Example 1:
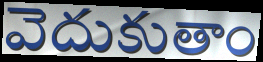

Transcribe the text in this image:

వెదుకుతాం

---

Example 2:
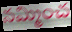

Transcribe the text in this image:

నమ్మించ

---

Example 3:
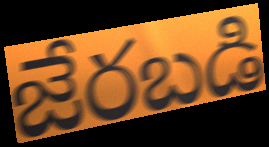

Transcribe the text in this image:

జేరబడి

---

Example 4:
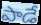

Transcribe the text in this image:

పాడే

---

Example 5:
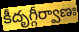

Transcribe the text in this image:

కీదృగ్గీర్వాణః